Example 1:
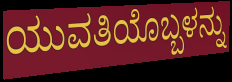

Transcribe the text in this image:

ಯುವತಿಯೊಬ್ಬಳನ್ನು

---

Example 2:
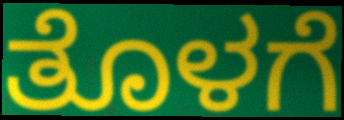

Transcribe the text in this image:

ತೊಳಗೆ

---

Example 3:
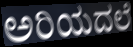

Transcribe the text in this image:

ಅರಿಯದಲೆ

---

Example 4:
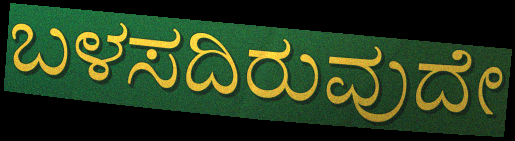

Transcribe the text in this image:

ಬಳಸದಿರುವುದೇ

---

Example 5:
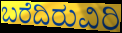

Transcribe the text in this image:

ಬರೆದಿರುವಿರಿ